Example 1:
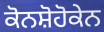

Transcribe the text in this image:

ਕੋਨਸ਼ੋਹੋਕੇਨ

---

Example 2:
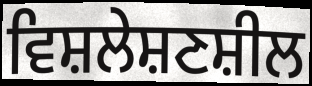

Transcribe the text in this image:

ਵਿਸ਼ਲੇਸ਼ਣਸ਼ੀਲ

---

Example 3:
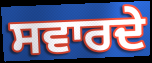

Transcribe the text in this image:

ਸਵਾਰਦੇ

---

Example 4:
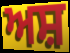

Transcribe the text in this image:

ਅਸ਼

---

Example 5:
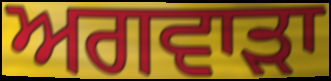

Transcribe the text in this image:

ਅਗਵਾੜਾ